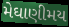
મેઘાણીમય